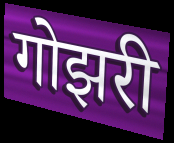
गोझरी